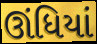
ઊંધિયાં